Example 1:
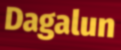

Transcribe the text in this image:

Dagalun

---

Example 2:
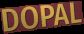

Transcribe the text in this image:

DOPAL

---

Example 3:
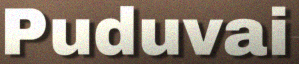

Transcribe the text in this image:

Puduvai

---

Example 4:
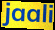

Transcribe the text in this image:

jaali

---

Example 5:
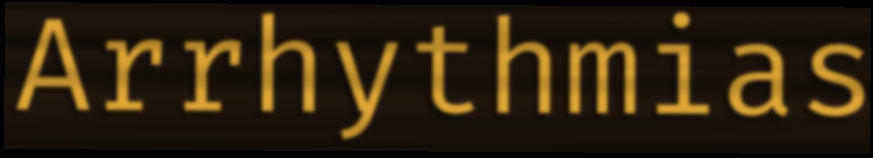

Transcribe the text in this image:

Arrhythmias